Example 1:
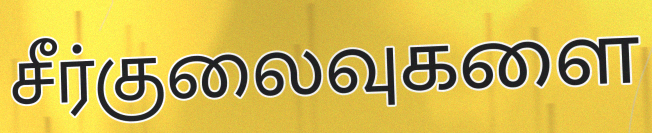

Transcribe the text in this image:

சீர்குலைவுகளை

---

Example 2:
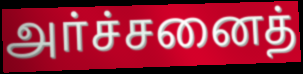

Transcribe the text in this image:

அர்ச்சனைத்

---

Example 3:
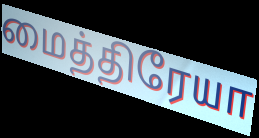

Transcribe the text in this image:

மைத்திரேயா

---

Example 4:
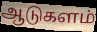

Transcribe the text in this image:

ஆடுகளம்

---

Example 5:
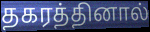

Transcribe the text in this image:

தகரத்தினால்